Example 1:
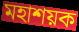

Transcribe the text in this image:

মহাশয়ক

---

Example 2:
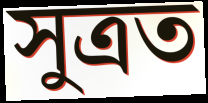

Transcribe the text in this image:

সুত্ৰত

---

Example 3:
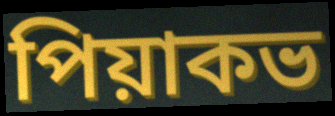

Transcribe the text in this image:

পিয়াকভ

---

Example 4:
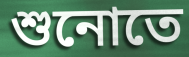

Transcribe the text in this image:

শুনোতে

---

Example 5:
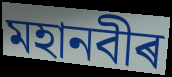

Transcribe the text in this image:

মহানবীৰ